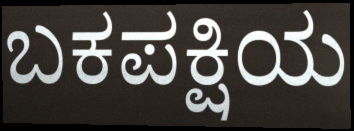
ಬಕಪಕ್ಷಿಯ